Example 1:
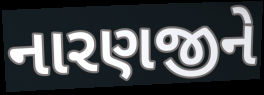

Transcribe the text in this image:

નારણજીને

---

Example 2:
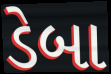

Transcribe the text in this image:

ડેબા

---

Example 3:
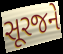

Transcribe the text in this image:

સૂરજને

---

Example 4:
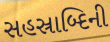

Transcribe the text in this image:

સહસ્રાબ્દિની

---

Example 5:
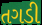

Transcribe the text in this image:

તગડી